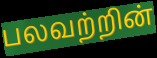
பலவற்றின்